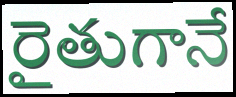
రైతుగానే